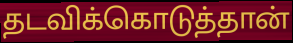
தடவிக்கொடுத்தான்